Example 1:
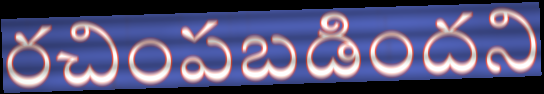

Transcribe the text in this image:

రచింపబడిందని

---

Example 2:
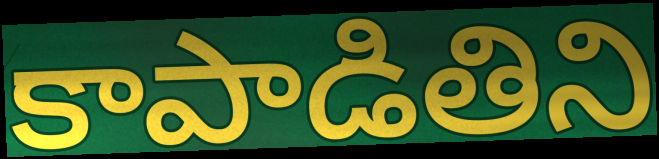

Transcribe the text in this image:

కాపాడితిని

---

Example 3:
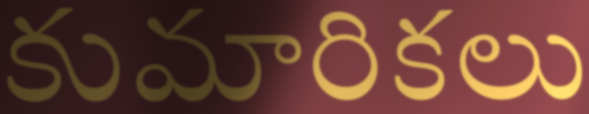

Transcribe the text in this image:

కుమారికలు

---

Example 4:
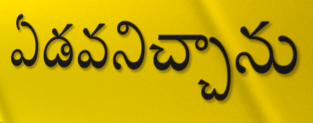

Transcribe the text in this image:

ఏడవనిచ్చాను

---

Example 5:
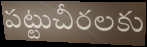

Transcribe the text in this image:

పట్టుచీరలకు